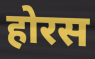
होरस